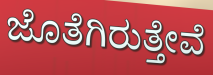
ಜೊತೆಗಿರುತ್ತೇವೆ